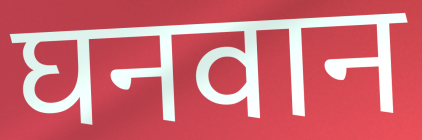
घनवान